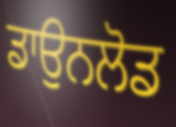
ਡਾਉਨਲੋਡ